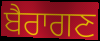
ਬੈਰਾਗਣ